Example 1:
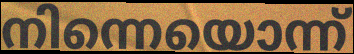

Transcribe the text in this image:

നിന്നെയൊന്ന്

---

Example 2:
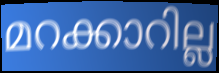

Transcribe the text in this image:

മറക്കാറില്ല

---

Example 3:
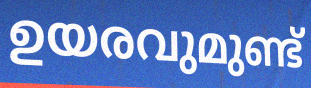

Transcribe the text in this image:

ഉയരവുമുണ്ട്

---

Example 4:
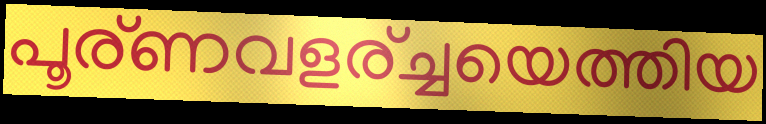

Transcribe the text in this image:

പൂര്ണവളര്ച്ചയെത്തിയ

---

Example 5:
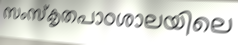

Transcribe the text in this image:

സംസ്കൃതപാഠശാലയിലെ